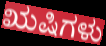
ಋಷಿಗಳು